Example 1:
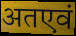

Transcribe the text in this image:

अतएवं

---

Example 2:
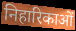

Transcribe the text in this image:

निहारिकाओं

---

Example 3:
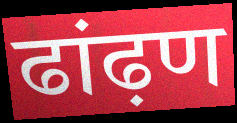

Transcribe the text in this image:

ढांढ़ण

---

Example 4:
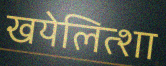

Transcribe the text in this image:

खयेलित्शा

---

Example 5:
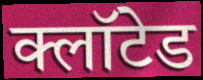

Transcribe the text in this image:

क्लॉटेड